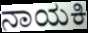
ನಾಯಕಿ